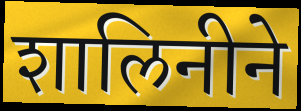
शालिनीने